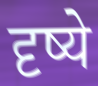
दृष्ये